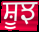
ਸ਼ੂਝ